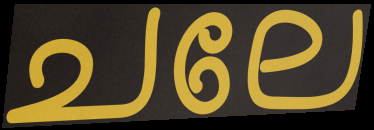
ചലേ